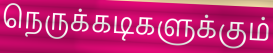
நெருக்கடிகளுக்கும்